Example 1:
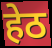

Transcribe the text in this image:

हेठ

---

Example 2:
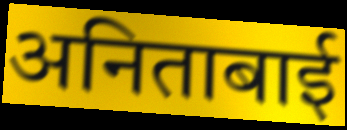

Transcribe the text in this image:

अनिताबाई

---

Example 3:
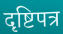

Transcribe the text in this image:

दृष्टिपत्र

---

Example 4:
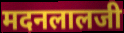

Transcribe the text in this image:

मदनलालजी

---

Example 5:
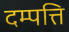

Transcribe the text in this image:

दम्पत्ति